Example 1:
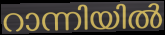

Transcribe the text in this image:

റാന്നിയിൽ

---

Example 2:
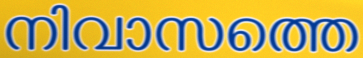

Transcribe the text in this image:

നിവാസത്തെ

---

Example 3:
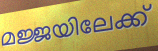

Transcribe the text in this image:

മജ്ജയിലേക്ക്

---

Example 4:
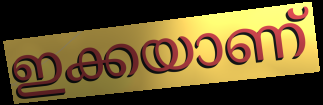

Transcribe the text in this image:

ഇക്കയാണ്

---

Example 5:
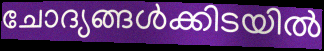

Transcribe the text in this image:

ചോദ്യങ്ങൾക്കിടയിൽ